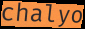
chalyo